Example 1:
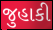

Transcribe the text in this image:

જુહાકી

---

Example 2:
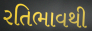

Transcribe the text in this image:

રતિભાવથી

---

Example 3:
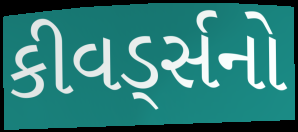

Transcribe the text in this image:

કીવર્ડ્સનો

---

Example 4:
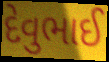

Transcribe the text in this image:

દેવુભાઈ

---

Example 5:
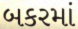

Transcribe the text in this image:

બકરમાં